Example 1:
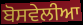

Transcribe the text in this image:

ਬੋਸਵੇਲੀਆ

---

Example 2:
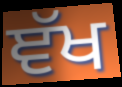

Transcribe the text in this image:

ਞੱਖ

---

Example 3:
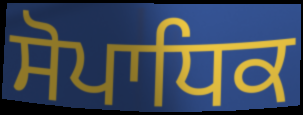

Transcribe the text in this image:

ਸੋਪਾਧਿਕ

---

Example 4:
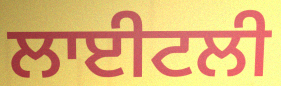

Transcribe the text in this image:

ਲਾਈਟਲੀ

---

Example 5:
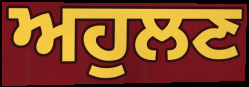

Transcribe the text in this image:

ਅਹੁਲਣ